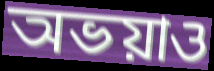
অভয়াও